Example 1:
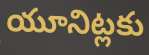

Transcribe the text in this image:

యూనిట్లకు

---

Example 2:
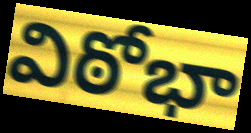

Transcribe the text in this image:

విఠోభా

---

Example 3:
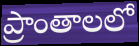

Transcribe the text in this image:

ప్రాంతాలలో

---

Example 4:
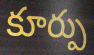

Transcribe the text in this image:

కూర్పు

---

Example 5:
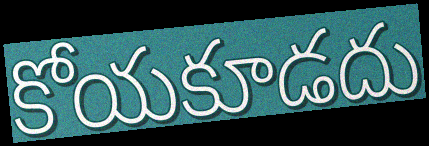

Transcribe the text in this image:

కోయకూడదు